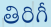
తిరిగీ